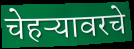
चेहऱ्यावरचे